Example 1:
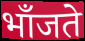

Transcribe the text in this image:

भाँजते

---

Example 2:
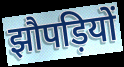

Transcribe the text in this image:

झौपड़ियों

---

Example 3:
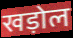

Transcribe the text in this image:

खड़ोल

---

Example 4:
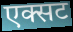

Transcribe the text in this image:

एक्सट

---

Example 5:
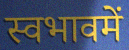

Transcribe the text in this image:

स्वभावमें